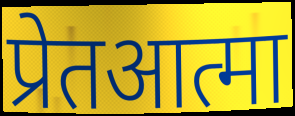
प्रेतआत्मा